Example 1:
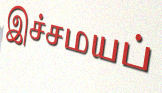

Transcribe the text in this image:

இச்சமயப்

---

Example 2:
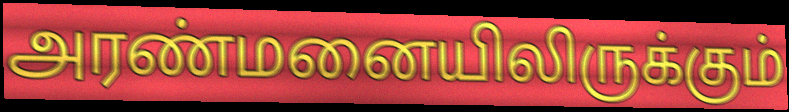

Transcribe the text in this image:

அரண்மனையிலிருக்கும்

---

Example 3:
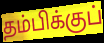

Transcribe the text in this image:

தம்பிக்குப்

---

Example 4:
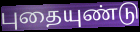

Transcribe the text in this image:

புதையுண்டு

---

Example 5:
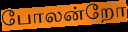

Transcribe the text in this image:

போலன்றோ